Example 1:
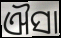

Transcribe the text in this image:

ଐସା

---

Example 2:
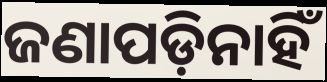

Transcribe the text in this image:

ଜଣାପଡ଼ିନାହିଁ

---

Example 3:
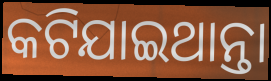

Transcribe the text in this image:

କଟିଯାଇଥାନ୍ତା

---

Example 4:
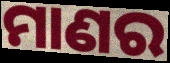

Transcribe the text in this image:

ମାଣର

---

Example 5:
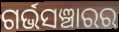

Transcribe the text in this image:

ଗର୍ଭସଞ୍ଚାରର